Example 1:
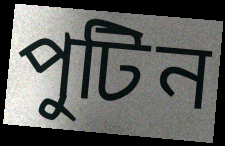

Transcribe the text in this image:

পুটিন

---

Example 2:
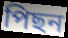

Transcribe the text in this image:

পিছন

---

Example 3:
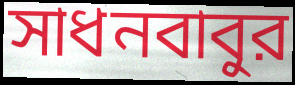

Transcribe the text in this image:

সাধনবাবুর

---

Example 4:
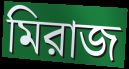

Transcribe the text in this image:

মিরাজ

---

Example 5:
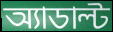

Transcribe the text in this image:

অ্যাডাল্ট